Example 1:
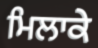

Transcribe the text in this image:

ਮਿਲਾਕੇ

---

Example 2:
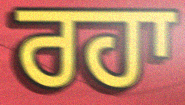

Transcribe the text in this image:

ਰਹਾ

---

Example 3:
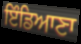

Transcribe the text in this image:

ਇੰਡਿਆਣਾ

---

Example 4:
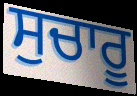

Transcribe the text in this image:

ਸੁਚਾਰੂ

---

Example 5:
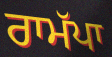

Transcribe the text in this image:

ਰਾਮੱਪਾ